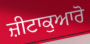
ਜ਼ੀਟਾਕੁਆਰੋ